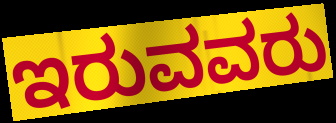
ಇರುವವರು